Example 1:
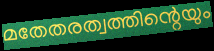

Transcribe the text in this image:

മതേതരത്വത്തിന്റെയും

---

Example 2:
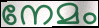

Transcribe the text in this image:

നേമം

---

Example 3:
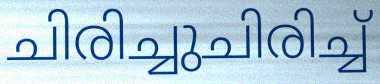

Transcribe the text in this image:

ചിരിച്ചുചിരിച്ച്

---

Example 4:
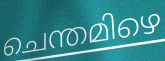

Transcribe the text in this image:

ചെന്തമിഴെ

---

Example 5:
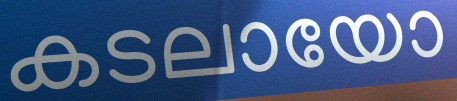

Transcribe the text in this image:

കടലായോ